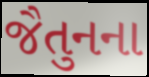
જૈતુનના